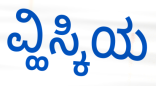
ವ್ಹಿಸ್ಕಿಯ